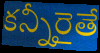
కన్నీరైతే